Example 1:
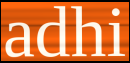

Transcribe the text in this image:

adhi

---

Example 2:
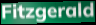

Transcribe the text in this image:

Fitzgerald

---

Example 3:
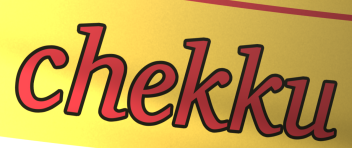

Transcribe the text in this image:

chekku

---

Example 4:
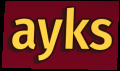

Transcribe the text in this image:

ayks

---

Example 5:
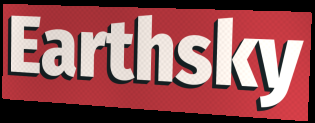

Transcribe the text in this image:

Earthsky